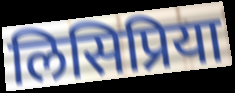
लिसिप्रिया